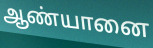
ஆண்யானை